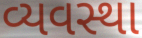
વ્યવસ્થા